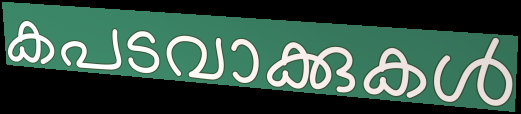
കപടവാക്കുകൾ